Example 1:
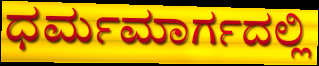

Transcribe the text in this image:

ಧರ್ಮಮಾರ್ಗದಲ್ಲಿ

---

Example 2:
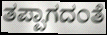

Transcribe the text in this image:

ತಪ್ಪಾಗದಂತೆ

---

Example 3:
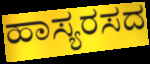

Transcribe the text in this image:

ಹಾಸ್ಯರಸದ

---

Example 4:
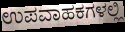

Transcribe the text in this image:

ಉಪವಾಹಕಗಳಲ್ಲಿ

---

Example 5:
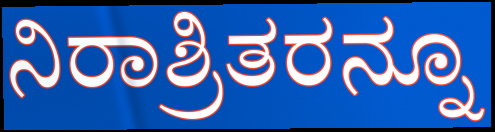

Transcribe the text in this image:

ನಿರಾಶ್ರಿತರನ್ನೂ